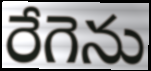
రేగెను